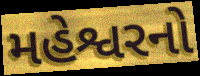
મહેશ્વરનો